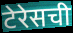
टेरेसची